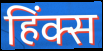
हिंक्स